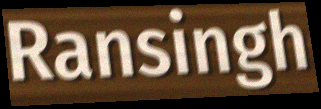
Ransingh